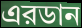
এরডান